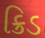
ક્રિડ